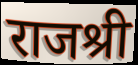
राजश्री